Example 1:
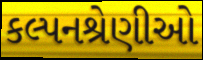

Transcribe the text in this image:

કલ્પનશ્રેણીઓ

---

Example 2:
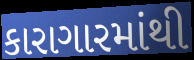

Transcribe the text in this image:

કારાગારમાંથી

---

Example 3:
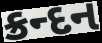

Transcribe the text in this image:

ક્રન્દન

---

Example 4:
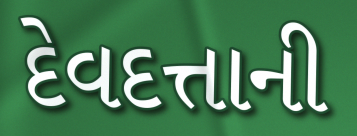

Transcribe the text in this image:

દેવદત્તાની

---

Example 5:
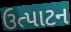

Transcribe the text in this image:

ઉત્પાટન